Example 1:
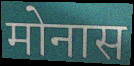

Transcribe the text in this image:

मोनास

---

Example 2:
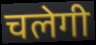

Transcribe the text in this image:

चलेगी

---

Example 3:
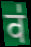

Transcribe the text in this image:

व॑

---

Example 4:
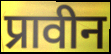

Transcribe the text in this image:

प्रावीन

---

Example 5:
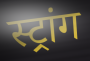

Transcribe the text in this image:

स्ट्रांग